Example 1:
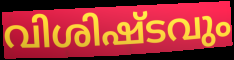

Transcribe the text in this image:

വിശിഷ്ടവും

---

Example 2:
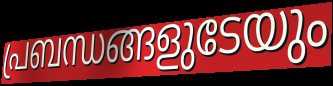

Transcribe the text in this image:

പ്രബന്ധങ്ങളുടേയും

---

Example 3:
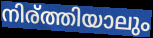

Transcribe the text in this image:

നിര്ത്തിയാലും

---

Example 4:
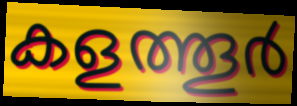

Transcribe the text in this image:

കളത്തൂർ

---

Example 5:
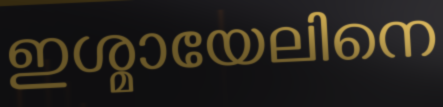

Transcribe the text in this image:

ഇശ്മായേലിനെ